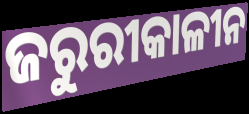
ଜରୁରୀକାଳୀନ